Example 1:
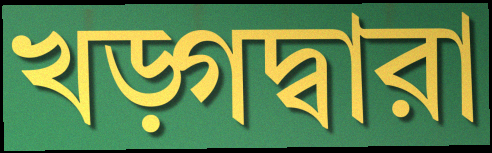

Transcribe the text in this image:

খড়্গদ্বারা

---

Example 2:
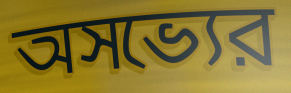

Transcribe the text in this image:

অসভ্যের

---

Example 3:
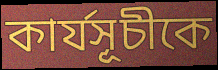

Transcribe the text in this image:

কার্যসূচীকে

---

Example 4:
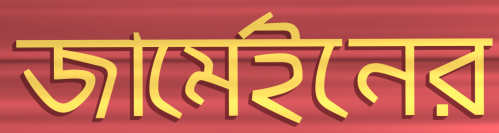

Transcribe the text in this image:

জার্মেইনের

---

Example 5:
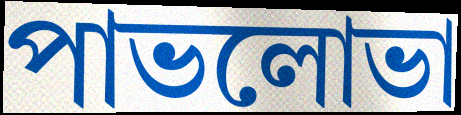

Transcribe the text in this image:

পাভলোভা